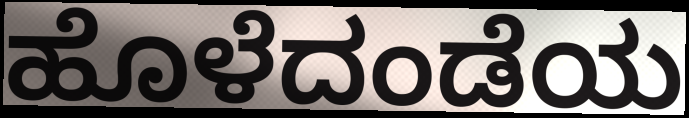
ಹೊಳೆದಂಡೆಯ